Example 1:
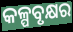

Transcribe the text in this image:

କଳ୍ପବୃକ୍ଷର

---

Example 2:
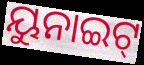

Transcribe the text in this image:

ୟୁନାଇଟ୍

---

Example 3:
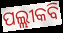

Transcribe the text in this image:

ପଲ୍ଲୀକବି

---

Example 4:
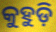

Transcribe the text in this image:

କୁହୁଡ଼ି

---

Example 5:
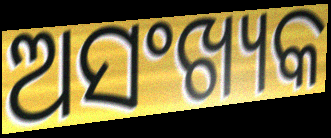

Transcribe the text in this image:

ଅସଂଖ୍ୟକ